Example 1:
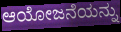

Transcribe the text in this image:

ಆಯೋಜನೆಯನ್ನು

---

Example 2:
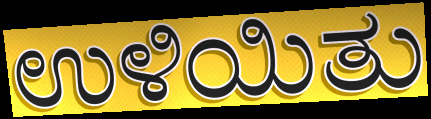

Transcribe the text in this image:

ಉಳಿಯಿತು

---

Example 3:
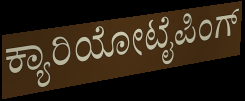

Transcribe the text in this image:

ಕ್ಯಾರಿಯೋಟೈಪಿಂಗ್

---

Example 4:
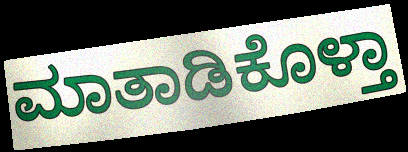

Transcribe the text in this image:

ಮಾತಾಡಿಕೊಳ್ತಾ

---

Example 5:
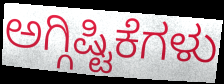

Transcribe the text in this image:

ಅಗ್ಗಿಷ್ಟಿಕೆಗಳು